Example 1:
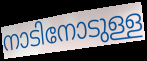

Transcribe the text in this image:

നാടിനോടുള്ള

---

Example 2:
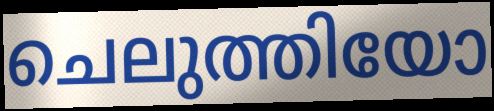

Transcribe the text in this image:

ചെലുത്തിയോ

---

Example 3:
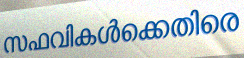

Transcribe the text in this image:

സഫവികൾക്കെതിരെ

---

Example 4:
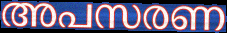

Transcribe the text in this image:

അപസരണ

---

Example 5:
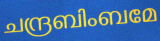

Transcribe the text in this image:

ചന്ദ്രബിംബമേ